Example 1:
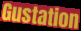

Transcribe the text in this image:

Gustation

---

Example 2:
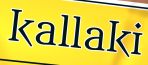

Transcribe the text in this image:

kallaki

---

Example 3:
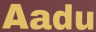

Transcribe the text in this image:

Aadu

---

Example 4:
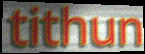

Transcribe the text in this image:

tithun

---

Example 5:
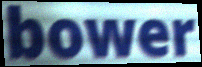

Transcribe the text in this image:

bower